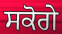
ਸਕੋਗੇ